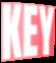
KEY